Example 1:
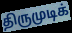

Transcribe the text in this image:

திருமுடிக்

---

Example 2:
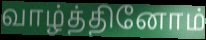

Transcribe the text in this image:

வாழ்த்தினோம்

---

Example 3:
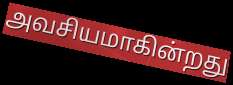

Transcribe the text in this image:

அவசியமாகின்றது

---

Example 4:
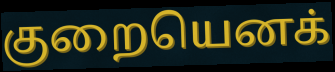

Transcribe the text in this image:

குறையெனக்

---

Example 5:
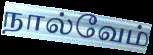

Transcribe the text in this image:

நால்வேம்